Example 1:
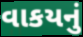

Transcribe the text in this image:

વાકયનું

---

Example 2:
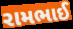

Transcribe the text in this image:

રામભાઈ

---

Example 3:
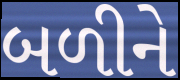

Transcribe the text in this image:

બળીને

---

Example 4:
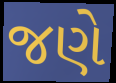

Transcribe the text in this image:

જણે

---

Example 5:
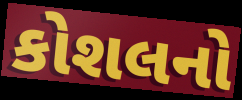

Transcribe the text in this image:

કોશલનો